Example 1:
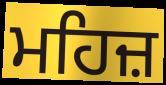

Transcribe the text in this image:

ਮਹਿਜ਼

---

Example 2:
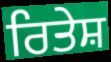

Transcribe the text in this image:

ਰਿਤੇਸ਼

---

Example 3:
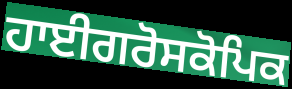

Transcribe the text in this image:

ਹਾਈਗਰੋਸਕੋਪਿਕ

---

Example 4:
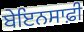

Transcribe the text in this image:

ਬੇਇਨਸਾਫ਼ੀ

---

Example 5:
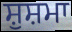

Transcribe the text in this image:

ਸ਼ੁਸ਼ਮਾ